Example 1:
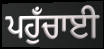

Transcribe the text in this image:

ਪਹੁਁਚਾਈ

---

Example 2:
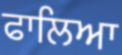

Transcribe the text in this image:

ਫਾਲਿਆ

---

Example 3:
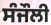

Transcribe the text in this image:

ਸੰਜੌਲੀ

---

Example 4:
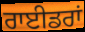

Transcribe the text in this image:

ਰਾਈਡਰਾਂ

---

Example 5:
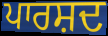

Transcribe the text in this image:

ਪਾਰਸ਼ਦ